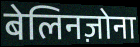
बेलिनज़ोना